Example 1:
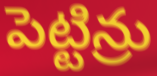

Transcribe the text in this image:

పెట్టిన్రు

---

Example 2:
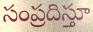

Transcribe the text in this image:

సంప్రదిస్తూ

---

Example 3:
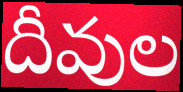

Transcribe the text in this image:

దీవుల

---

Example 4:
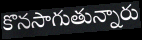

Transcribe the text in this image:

కొనసాగుతున్నారు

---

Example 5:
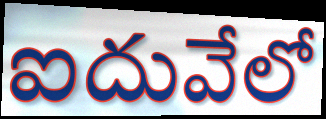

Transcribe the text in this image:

ఐదువేలో